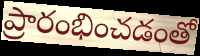
ప్రారంభించడంతో